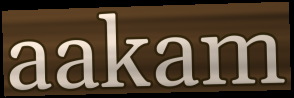
aakam